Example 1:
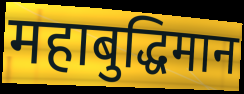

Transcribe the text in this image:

महाबुद्धिमान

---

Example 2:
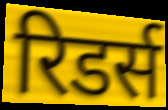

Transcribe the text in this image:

रिडर्स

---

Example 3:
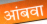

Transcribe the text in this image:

आंबवा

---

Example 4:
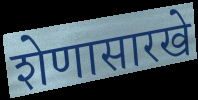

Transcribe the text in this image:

शेणासारखे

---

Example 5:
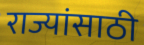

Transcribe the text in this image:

राज्यांसाठी